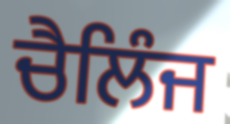
ਚੈਲਿੰਜ